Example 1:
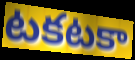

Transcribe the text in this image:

టకటకా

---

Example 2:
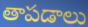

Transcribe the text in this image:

తాపడాలు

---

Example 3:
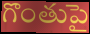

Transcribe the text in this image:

గొంతుపై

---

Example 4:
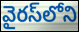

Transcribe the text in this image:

వైరస్‌లోని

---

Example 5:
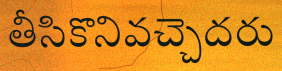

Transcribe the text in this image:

తీసికొనివచ్చెదరు